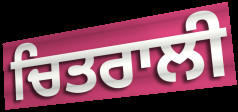
ਚਿਤਰਾਲੀ